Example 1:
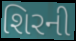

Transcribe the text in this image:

શિરની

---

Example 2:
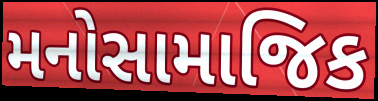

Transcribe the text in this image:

મનોસામાજિક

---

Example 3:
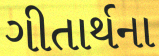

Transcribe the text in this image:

ગીતાર્થના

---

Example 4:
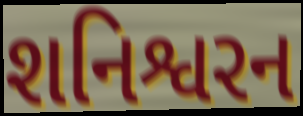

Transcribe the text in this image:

શનિશ્વરન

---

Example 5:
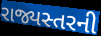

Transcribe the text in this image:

રાજ્યસ્તરની